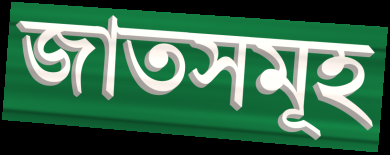
জাতসমূহ